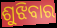
ଶୁଝିବାର